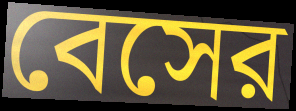
বেসের